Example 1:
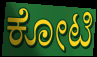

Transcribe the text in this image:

ಕೋಟಿ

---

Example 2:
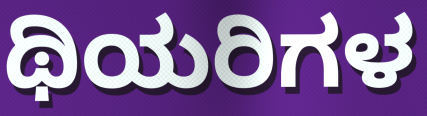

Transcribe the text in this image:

ಥಿಯರಿಗಳ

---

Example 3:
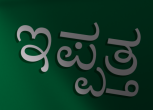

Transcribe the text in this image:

ಇಪ್ಪತ್ತ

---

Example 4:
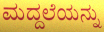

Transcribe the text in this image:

ಮದ್ದಲೆಯನ್ನು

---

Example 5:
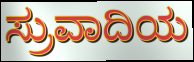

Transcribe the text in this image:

ಸ್ರುವಾದಿಯ